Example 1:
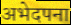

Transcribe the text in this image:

अभेदपना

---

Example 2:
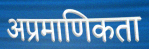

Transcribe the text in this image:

अप्रमाणिकता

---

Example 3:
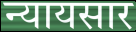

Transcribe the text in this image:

न्यायसार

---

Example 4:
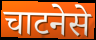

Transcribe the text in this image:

चाटनेसे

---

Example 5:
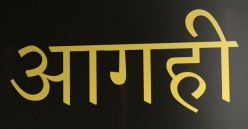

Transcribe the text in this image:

आगही